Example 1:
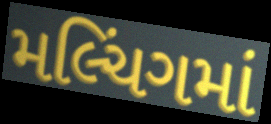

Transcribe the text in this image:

મલ્ચિંગમાં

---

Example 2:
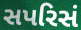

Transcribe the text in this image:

સપરિસં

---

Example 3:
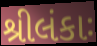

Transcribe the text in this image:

શ્રીલંકાઃ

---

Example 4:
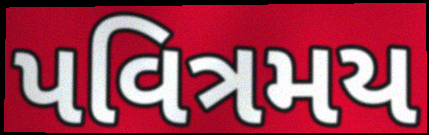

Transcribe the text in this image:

પવિત્રમય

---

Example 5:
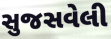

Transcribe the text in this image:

સુજસવેલી